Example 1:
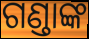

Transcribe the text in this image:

ଗଣ୍ଡାଙ୍କ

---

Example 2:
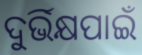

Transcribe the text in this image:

ଦୁର୍ଭିକ୍ଷପାଇଁ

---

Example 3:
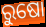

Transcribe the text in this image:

ରୁଷୋ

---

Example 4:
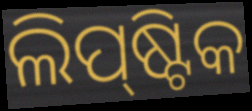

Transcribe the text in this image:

ଲିପ୍‌ଷ୍ଟିକ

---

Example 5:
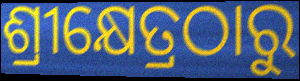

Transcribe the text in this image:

ଶ୍ରୀକ୍ଷେତ୍ରଠାରୁ